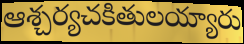
ఆశ్చర్యచకితులయ్యారు